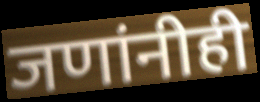
जणांनीही